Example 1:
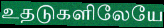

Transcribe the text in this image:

உதடுகளிலேயே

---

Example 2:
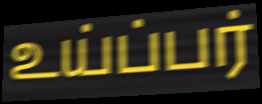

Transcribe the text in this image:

உய்ப்பர்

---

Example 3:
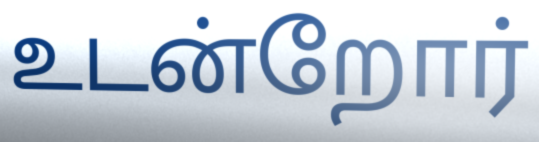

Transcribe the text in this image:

உடன்றோர்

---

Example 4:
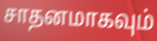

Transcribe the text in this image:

சாதனமாகவும்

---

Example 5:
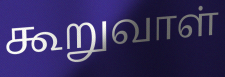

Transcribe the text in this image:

கூறுவாள்